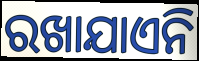
ରଖାଯାଏନି